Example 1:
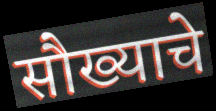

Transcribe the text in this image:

सौख्याचे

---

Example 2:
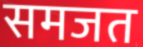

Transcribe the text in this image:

समजत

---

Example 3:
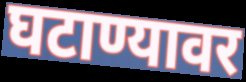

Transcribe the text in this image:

घटाण्यावर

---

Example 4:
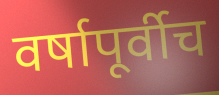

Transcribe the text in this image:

वर्षापूर्वीच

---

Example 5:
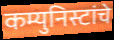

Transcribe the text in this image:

कम्युनिस्टांचे